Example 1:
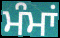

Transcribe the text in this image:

ਮੰਮਾਂ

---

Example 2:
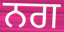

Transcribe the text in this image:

ਨਗ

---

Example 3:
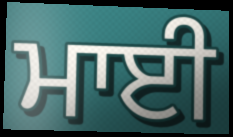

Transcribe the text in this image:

ਮਾਈ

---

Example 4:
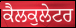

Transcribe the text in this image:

ਕੈਲਕੁਲੇਟਰ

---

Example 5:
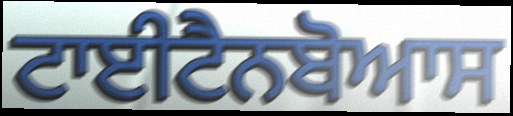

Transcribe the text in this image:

ਟਾਈਟੈਨਬੋਆਸ